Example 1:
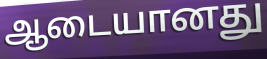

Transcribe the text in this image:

ஆடையானது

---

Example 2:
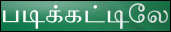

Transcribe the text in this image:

படிக்கட்டிலே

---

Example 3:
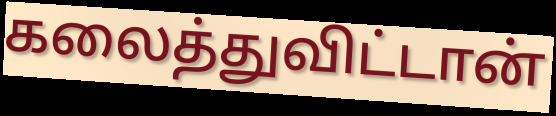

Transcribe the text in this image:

கலைத்துவிட்டான்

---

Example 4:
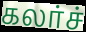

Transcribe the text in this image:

கலர்ச்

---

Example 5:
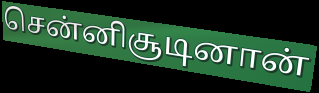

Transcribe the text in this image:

சென்னிசூடினான்